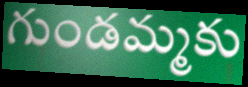
గుండమ్మకు